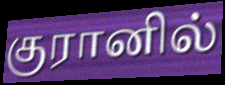
குரானில்